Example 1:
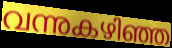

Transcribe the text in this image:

വന്നുകഴിഞ്ഞ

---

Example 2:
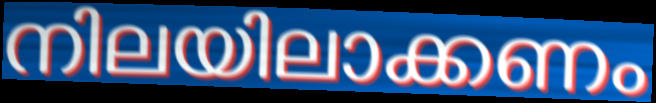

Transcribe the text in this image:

നിലയിലാക്കണം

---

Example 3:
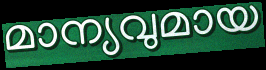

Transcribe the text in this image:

മാന്യവുമായ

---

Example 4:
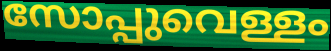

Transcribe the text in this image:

സോപ്പുവെള്ളം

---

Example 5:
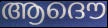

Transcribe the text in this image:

ആദൌ